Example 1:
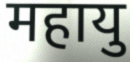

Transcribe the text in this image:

महायु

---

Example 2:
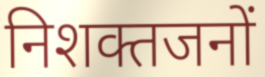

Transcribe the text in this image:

निशक्तजनों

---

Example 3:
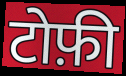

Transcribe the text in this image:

टोफ़ी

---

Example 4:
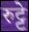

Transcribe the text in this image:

रुट्टे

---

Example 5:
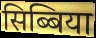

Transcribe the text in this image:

सिब्बिया